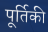
पूर्तिकी